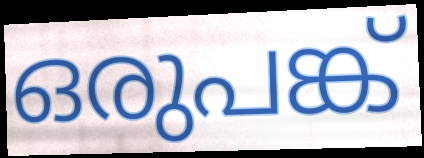
ഒരുപങ്ക്